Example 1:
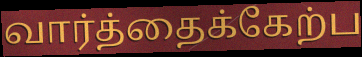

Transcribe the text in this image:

வார்த்தைக்கேற்ப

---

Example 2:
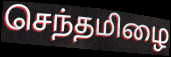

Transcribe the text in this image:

செந்தமிழை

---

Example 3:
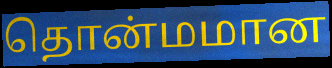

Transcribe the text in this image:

தொன்மமான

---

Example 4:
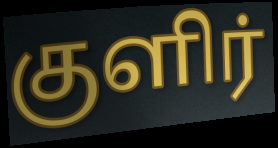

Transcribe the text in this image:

குளிர்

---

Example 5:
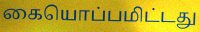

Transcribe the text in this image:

கையொப்பமிட்டது